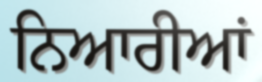
ਨਿਆਰੀਆਂ